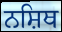
ਨਸ਼ਿਥ